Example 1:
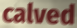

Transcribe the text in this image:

calved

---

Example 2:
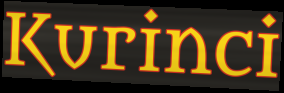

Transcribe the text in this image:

Kurinci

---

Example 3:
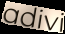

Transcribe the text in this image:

adivi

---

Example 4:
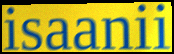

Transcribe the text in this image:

isaanii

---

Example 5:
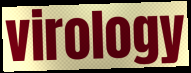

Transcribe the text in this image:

virology